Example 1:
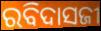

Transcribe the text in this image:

ରବିଦାସଜୀ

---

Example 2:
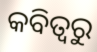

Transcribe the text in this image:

କବିତ୍ଵରୁ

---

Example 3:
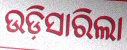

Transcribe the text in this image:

ଉଡ଼ିସାରିଲା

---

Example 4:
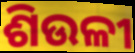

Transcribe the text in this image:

ଶିଉଳୀ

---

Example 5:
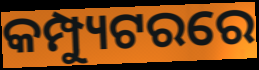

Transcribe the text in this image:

କମ୍ପ୍ୟୁଟରରେ